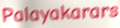
Palayakarars